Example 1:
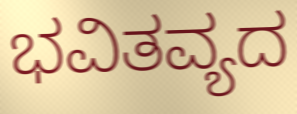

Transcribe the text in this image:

ಭವಿತವ್ಯದ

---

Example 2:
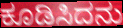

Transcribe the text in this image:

ಕೂಡಿಸಿದನು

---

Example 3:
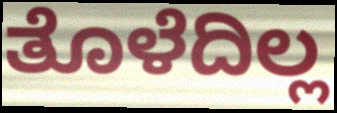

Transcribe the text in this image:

ತೊಳೆದಿಲ್ಲ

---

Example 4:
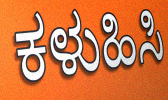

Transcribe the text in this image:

ಕಳುಹಿಸಿ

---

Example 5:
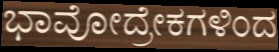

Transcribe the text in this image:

ಭಾವೋದ್ರೇಕಗಳಿಂದ